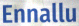
Ennallu